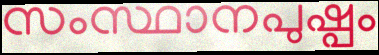
സംസ്ഥാനപുഷ്പം